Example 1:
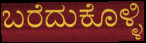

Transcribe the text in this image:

ಬರೆದುಕೊಳ್ಳಿ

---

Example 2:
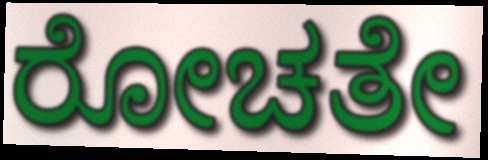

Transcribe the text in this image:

ರೋಚತೇ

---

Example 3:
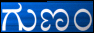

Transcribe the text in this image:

ಗುಣಂ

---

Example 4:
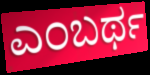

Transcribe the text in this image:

ಎಂಬರ್ಥ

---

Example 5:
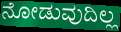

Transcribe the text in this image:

ನೋಡುವುದಿಲ್ಲ